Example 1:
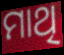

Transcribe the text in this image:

ମାଥି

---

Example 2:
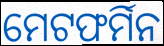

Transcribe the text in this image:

ମେଟଫର୍ମିନ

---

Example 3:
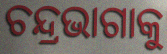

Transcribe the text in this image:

ଚନ୍ଦ୍ରଭାଗାକୁ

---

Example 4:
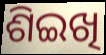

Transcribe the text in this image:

ଶିଇଖି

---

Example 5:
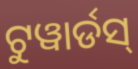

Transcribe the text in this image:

ଟୁୱାର୍ଡସ୍